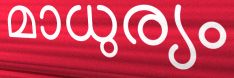
മാധുര്യം